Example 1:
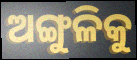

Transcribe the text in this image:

ଅଙ୍ଗୁଳିକୁ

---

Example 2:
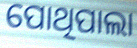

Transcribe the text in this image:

ପୋଥିପାଲା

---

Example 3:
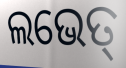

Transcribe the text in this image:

ଲଭେତ୍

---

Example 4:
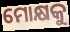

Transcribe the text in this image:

ମୋକ୍ଷକୁ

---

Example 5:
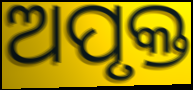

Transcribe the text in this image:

ଅପୃକ୍ତ